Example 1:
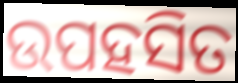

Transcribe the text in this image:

ଉପହସିତ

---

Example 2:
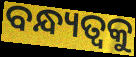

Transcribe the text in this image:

ବନ୍ଧ୍ୟତ୍ୱକୁ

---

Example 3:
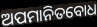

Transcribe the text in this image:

ଅପମାନିତବୋଧ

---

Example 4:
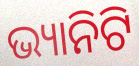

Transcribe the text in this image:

ଭ୍ୟାନିଟି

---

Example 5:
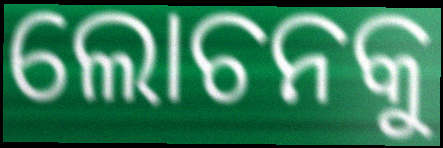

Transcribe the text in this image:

ଲୋଚନକୁ